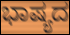
ಭಾಷ್ಯದ